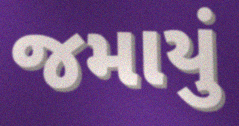
જમાયું